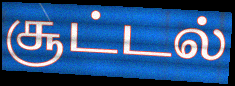
சூட்டல்